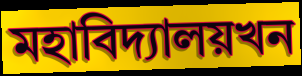
মহাবিদ্যালয়খন